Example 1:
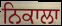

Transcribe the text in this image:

ਨਿਕਾਲਾ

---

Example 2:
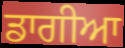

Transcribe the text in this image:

ਡਾਗੀਆ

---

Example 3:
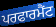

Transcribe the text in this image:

ਪਰਫਾਰਮੈਂਟ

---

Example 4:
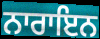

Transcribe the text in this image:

ਨਾਰਾਇਨ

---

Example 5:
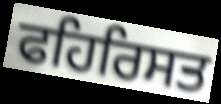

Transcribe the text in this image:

ਫਹਿਰਿਸਤ